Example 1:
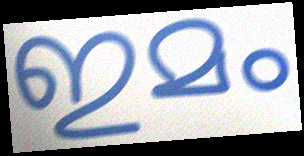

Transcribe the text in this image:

ഇമം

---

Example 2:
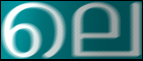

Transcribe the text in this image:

ലെ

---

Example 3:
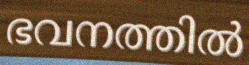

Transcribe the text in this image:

ഭവനത്തിൽ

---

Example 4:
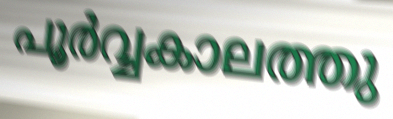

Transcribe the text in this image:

പൂർവ്വകാലത്തു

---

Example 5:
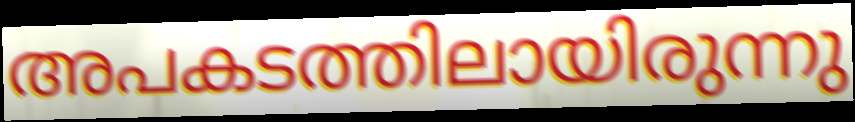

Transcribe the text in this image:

അപകടത്തിലായിരുന്നു